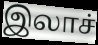
இலாச்